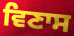
ਵਿਣਾਸ